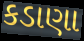
કડાણા